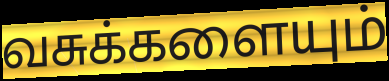
வசுக்களையும்